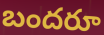
బందరూ